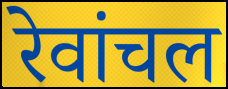
रेवांचल